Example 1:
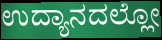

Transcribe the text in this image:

ಉದ್ಯಾನದಲ್ಲೋ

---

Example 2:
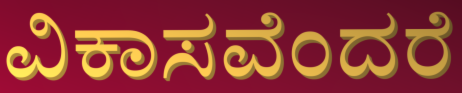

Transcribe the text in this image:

ವಿಕಾಸವೆಂದರೆ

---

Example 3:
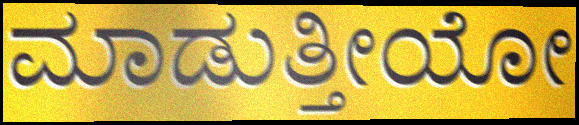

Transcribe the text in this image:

ಮಾಡುತ್ತೀಯೋ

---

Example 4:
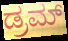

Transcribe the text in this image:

ಡ್ರಮ್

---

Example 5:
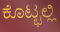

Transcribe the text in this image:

ಕೊಟ್ಟಲ್ಲಿ